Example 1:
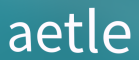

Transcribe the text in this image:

aetle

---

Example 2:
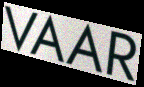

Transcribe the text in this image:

VAAR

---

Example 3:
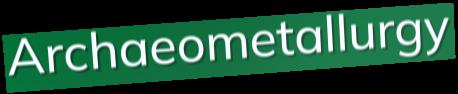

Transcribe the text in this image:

Archaeometallurgy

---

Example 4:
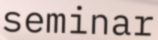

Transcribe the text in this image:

seminar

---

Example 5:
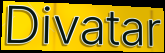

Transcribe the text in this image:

Divatar